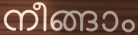
നീങ്ങാം